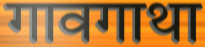
गावगाथा